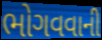
ભોગવવાની